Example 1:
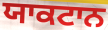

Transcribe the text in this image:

ਯਾਕਟਾਨ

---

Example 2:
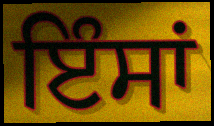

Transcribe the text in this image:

ਇੰਸਾਂ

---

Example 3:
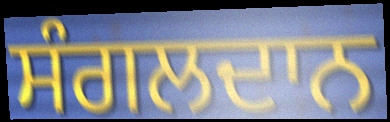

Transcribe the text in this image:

ਸੰਗਲਦਾਨ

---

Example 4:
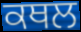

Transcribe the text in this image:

ਕਥਲ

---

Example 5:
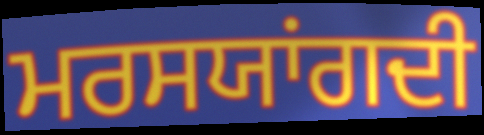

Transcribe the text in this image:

ਮਰਸਯਾਂਗਦੀ